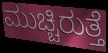
ಮುಚ್ಚಿರುತ್ತೆ